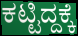
ಕಟ್ಟಿದ್ದಕ್ಕೆ